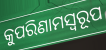
କୁପରିଣାମସ୍ୱରୂପ